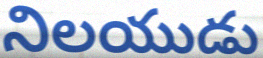
నిలయుడు